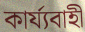
কাৰ্য্যবাহী